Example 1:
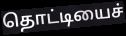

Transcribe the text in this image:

தொட்டியைச்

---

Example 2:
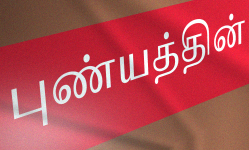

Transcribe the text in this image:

புண்யத்தின்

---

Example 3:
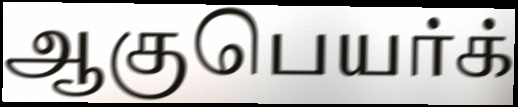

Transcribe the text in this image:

ஆகுபெயர்க்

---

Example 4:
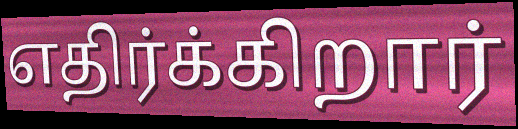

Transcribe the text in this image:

எதிர்க்கிறார்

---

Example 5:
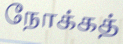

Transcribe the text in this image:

நோக்கத்